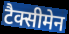
टैक्सीमेन